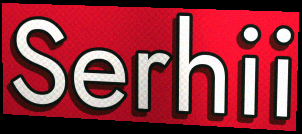
Serhii